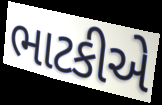
ભાટકીએ